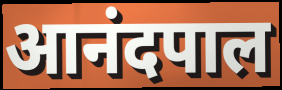
आनंदपाल